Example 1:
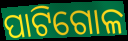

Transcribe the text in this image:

ପାଟିଗୋଳ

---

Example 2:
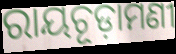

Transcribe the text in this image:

ରାୟଚୂଡ଼ାମଣୀ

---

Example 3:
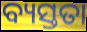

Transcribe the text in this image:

ବ୍ୟସ୍ତତା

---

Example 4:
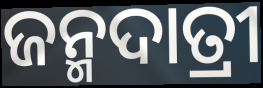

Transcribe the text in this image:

ଜନ୍ମଦାତ୍ରୀ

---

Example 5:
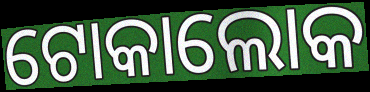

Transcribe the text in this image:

ଟୋକାଲୋକ